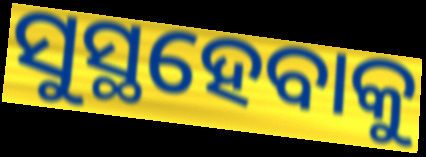
ସୁସ୍ଥହେବାକୁ